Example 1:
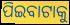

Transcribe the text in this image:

ପିଇବାଟାକୁ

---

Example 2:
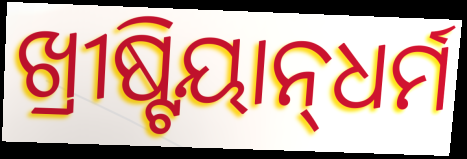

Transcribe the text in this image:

ଖ୍ରୀଷ୍ଟିୟାନ୍‌ଧର୍ମ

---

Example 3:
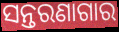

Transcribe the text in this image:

ସନ୍ତରଣାଗାର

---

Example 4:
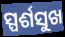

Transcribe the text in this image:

ସ୍ପର୍ଶସୁଖ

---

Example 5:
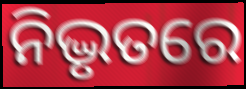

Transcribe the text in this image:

ନିଦ୍ଭୃତରେ